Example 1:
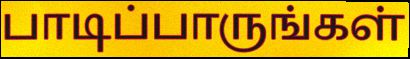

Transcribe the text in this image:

பாடிப்பாருங்கள்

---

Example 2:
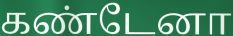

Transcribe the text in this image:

கண்டேனா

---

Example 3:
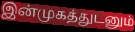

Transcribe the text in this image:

இன்முகத்துடனும்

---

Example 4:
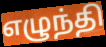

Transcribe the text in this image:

எழுந்தி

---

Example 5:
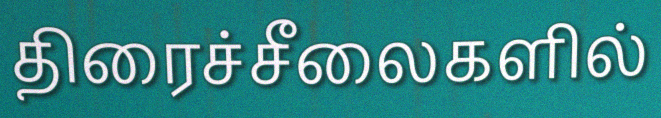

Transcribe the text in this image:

திரைச்சீலைகளில்